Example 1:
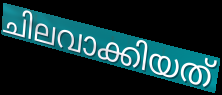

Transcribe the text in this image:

ചിലവാക്കിയത്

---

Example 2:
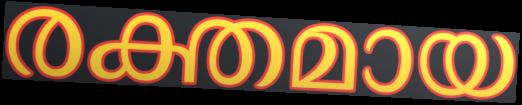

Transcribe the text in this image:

രക്തമായ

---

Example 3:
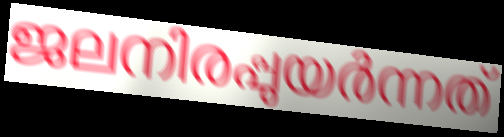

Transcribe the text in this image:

ജലനിരപ്പുയർന്നത്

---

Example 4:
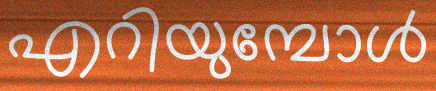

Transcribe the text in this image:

എറിയുമ്പോൾ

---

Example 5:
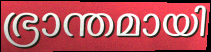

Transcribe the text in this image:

ഭ്രാന്തമായി